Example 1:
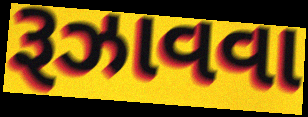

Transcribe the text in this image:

રૂઝાવવા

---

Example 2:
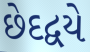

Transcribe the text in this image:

છેદદ્વયે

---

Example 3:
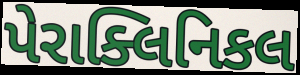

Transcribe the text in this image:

પેરાક્લિનિકલ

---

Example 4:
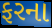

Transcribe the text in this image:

ફરના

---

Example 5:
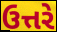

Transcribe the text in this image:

ઉત્તરે